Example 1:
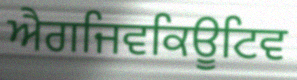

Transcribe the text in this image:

ਐਗਜਿਵਕਿਊਟਿਵ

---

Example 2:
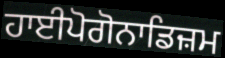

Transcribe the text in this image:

ਹਾਈਪੋਗੋਨਾਡਿਜ਼ਮ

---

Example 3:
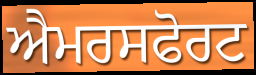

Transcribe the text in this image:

ਐਮਰਸਫੋਰਟ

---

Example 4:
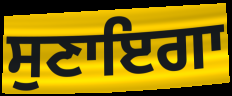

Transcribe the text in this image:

ਸੁਣਾਇਗਾ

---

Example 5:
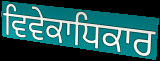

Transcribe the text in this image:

ਵਿਵੇਕਾਧਿਕਾਰ